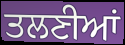
ਤਲਣੀਆਂ